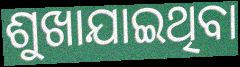
ଶୁଖାଯାଇଥିବା